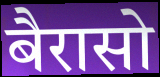
बैरासो